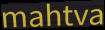
mahtva